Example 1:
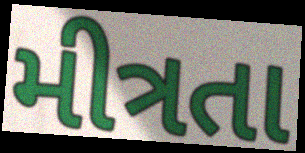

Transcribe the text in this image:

મીત્રતા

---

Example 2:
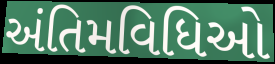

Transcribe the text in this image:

અંતિમવિધિઓ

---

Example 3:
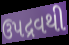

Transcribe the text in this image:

ઉપદ્રવથી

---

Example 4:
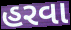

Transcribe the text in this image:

હરવા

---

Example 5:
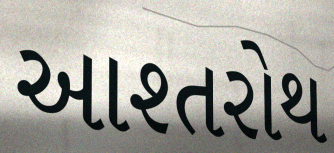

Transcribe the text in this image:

આશ્તરોથ